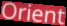
Orient